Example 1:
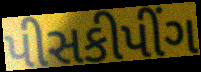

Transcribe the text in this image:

પીસકીપીંગ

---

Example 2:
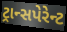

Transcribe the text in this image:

ટ્રાન્સપેરેન્ટ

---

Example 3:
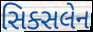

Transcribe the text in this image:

સિક્સલેન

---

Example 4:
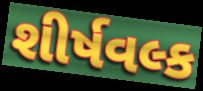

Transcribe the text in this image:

શીર્ષવલ્ક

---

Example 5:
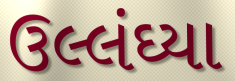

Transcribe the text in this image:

ઉલ્લંઘ્યા